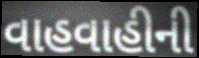
વાહવાહીની